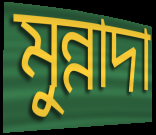
মুন্নাদা